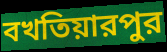
বখতিয়ারপুর